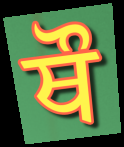
ਥੌ